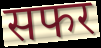
सफर